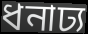
ধনাঢ্য